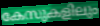
കേസുകളിലും